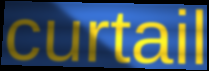
curtail